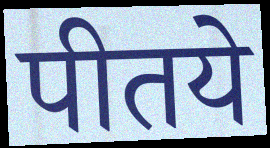
पीतये